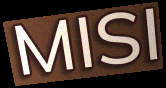
MISI